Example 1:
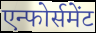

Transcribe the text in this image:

एन्फोर्समेंट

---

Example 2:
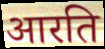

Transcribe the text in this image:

आरति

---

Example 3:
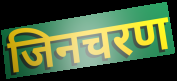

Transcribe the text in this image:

जिनचरण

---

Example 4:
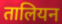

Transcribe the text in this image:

तालियन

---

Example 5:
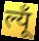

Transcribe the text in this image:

ल्यूँ